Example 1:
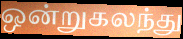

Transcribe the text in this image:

ஒன்றுகலந்து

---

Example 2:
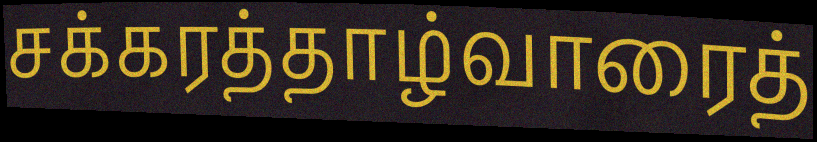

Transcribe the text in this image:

சக்கரத்தாழ்வாரைத்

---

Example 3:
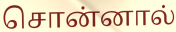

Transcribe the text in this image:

சொன்னால்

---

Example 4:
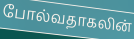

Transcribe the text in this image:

போல்வதாகலின்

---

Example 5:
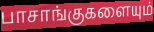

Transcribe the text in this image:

பாசாங்குகளையும்